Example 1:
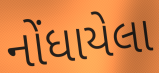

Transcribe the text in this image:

નોંધાયેલા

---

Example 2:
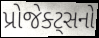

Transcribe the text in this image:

પ્રોજેક્ટ્સનો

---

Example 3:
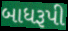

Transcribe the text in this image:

બાધરૂપી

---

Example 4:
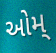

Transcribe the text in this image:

ઓમ્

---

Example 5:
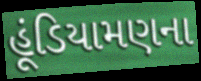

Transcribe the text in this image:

હૂંડિયામણના